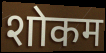
शोकम